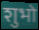
शुभो